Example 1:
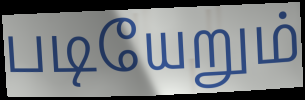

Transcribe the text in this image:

படியேறும்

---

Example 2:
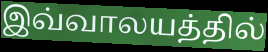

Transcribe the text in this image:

இவ்வாலயத்தில்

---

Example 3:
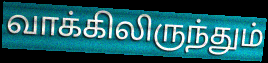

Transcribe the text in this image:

வாக்கிலிருந்தும்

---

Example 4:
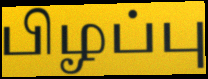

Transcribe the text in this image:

பிழப்பு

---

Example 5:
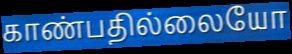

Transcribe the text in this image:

காண்பதில்லையோ